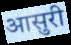
आसुरी